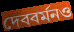
দেববর্মনও